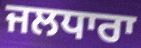
ਜਲਧਾਰਾ